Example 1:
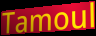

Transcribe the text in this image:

Tamoul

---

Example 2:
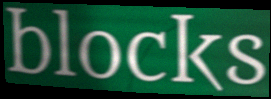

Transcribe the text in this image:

blocks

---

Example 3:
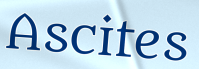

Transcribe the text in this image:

Ascites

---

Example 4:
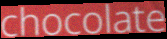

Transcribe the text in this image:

chocolate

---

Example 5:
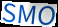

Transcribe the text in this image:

SMO